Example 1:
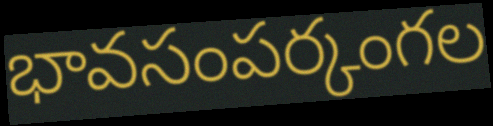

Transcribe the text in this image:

భావసంపర్కంగల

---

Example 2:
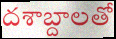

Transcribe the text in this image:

దశాబ్దాలతో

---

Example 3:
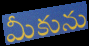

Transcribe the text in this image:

మీకును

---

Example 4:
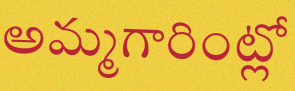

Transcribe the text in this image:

అమ్మగారింట్లో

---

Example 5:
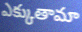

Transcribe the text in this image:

ఎక్కుతామా